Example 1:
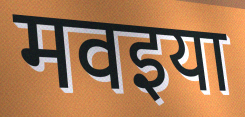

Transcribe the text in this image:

मवइया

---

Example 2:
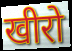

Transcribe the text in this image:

खीरो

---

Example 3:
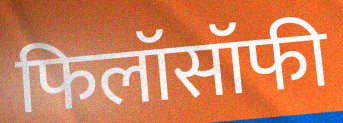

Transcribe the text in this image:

फिलॉसॉफी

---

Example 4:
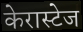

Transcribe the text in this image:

केरास्टेज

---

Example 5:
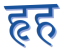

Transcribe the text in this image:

हृह